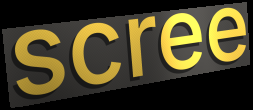
scree